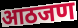
आठजण